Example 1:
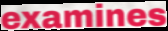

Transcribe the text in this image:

examines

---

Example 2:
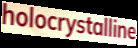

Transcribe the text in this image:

holocrystalline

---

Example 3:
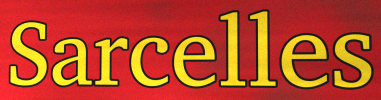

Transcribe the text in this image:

Sarcelles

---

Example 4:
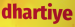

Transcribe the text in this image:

dhartiye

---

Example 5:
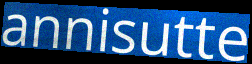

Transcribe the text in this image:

annisutte